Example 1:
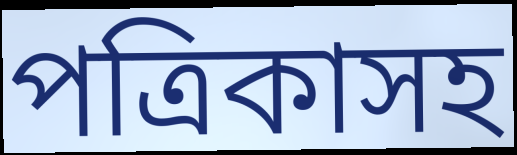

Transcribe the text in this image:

পত্রিকাসহ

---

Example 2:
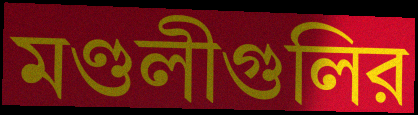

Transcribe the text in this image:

মণ্ডলীগুলির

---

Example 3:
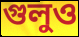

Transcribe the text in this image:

গুলুও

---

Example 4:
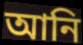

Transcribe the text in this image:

আনি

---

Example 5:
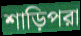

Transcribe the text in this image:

শাড়িপরা